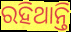
ରହିଥାନ୍ତି